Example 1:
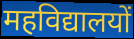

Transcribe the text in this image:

महविद्यालयों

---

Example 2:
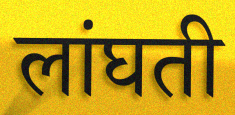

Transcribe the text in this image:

लांघती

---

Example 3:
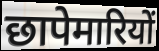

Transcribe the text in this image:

छापेमारियों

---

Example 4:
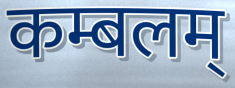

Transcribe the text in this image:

कम्बलम्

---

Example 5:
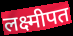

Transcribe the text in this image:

लक्ष्मीपत